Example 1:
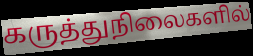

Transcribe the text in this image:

கருத்துநிலைகளில்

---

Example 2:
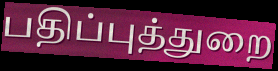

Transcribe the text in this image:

பதிப்புத்துறை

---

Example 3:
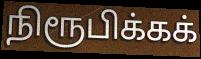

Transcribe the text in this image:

நிரூபிக்கக்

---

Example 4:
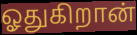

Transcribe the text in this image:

ஓதுகிறான்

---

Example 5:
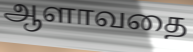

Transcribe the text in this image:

ஆளாவதை